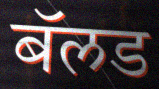
बॅलड